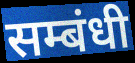
सम्बंधी